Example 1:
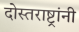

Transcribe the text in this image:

दोस्तराष्ट्रांनी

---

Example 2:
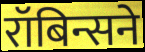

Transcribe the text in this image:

रॉबिन्सने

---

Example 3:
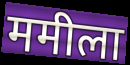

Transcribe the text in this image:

ममीला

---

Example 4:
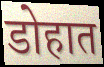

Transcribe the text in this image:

डोहात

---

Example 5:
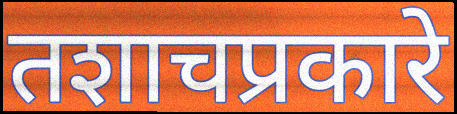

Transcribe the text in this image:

तशाचप्रकारे